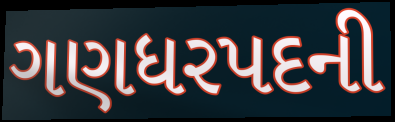
ગણધરપદની